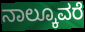
ನಾಲ್ಕೂವರೆ